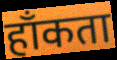
हाँकता